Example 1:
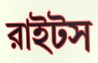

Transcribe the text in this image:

রাইটস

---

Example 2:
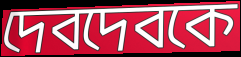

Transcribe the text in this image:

দেবদেবকে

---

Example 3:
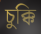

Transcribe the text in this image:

চুক্কি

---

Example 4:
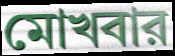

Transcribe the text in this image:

মোখবার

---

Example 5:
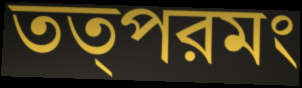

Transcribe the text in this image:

তত্পরমং